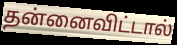
தன்னைவிட்டால்